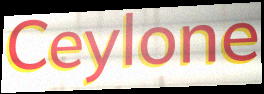
Ceylone